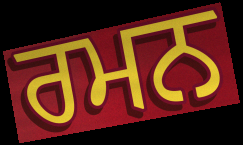
ਰਮਨ